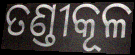
ତଣ୍ଡୀକୂଳ